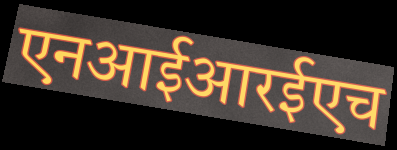
एनआईआरईएच